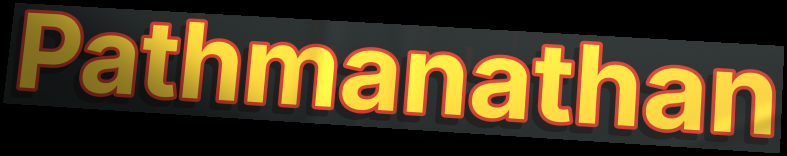
Pathmanathan